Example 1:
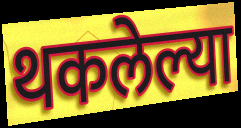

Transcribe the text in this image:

थकलेल्या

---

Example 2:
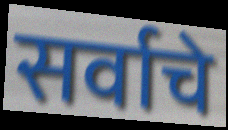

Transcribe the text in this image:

सर्वाचे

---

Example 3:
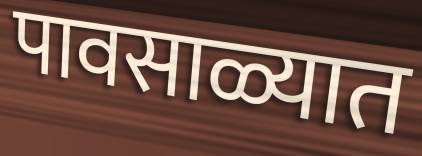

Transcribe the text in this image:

पावसाळ्यात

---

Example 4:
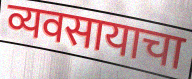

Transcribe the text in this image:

व्यवसायाचा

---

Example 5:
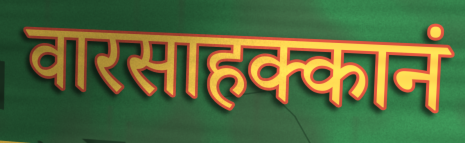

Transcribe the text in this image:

वारसाहक्कानं